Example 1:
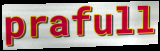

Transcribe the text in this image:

prafull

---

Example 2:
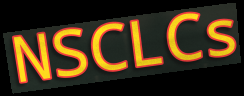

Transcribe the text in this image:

NSCLCs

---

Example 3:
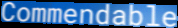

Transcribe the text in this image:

Commendable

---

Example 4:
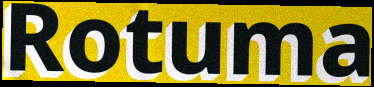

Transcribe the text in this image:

Rotuma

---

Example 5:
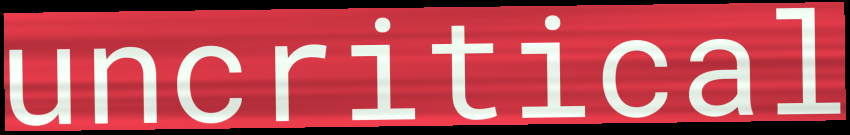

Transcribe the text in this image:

uncritical